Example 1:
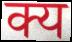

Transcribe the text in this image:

क्य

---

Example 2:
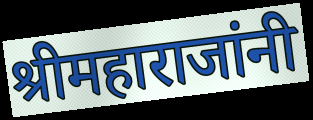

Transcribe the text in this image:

श्रीमहाराजांनी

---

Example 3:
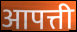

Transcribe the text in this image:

आपत्ती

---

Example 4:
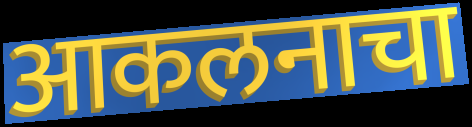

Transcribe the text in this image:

आकलनाचा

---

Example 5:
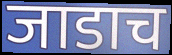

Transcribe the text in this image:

जाडाच